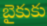
బైకుకు